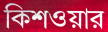
কিশওয়ার